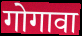
गोगावा